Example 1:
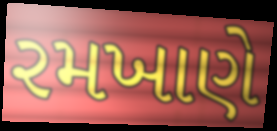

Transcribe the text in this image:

રમખાણે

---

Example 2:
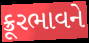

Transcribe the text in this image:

ક્રૂરભાવને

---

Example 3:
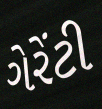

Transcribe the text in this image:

ગેરેંટી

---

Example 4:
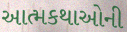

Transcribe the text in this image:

આત્મકથાઓની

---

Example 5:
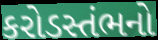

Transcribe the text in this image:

કરોડસ્તંભનો